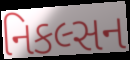
નિકલ્સન